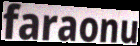
faraonu